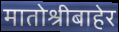
मातोश्रीबाहेर